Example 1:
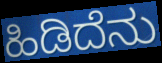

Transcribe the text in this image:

ಹಿಡಿದೆನು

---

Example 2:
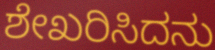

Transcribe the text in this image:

ಶೇಖರಿಸಿದನು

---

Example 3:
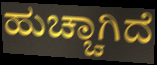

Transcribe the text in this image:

ಹುಚ್ಚಾಗಿದೆ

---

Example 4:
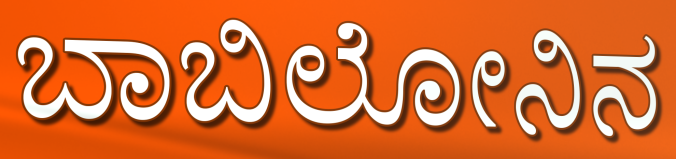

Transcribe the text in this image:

ಬಾಬಿಲೋನಿನ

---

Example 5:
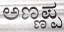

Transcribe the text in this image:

ಅಣ್ಣಪ್ಪ